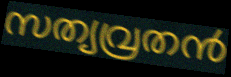
സത്യവ്രതൻ